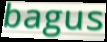
bagus